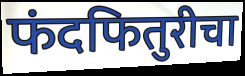
फंदफितुरीचा